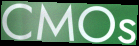
CMOs